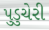
પુડુચેરી